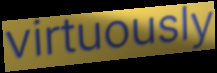
virtuously